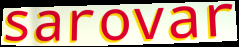
sarovar